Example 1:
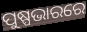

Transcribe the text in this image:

ପୁଷ୍ପଭାରରେ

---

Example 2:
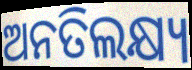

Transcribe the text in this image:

ଅନତିଲକ୍ଷ୍ୟ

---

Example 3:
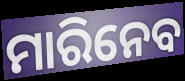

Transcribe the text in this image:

ମାରିନେବ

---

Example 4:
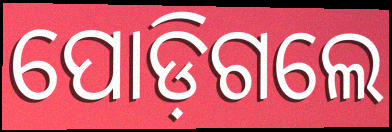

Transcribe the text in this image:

ପୋଡ଼ିଗଲେ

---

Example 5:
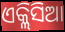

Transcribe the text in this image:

ଏକ୍ଲିସିଆ